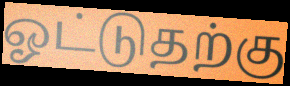
ஓட்டுதற்கு